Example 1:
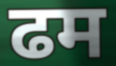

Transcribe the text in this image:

ढम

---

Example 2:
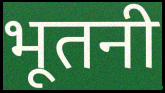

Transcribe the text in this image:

भूतनी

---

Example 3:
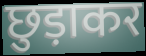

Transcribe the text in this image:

छुड़ाकर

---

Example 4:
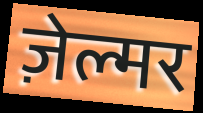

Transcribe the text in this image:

ज़ेल्मर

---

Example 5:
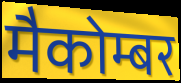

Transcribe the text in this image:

मैकोम्बर